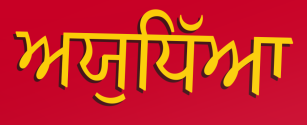
ਅਯੁਧਿੱਆ